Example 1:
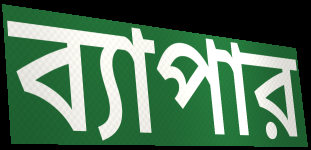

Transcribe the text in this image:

ব্যাপার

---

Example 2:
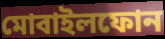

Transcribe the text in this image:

মোবাইলফোন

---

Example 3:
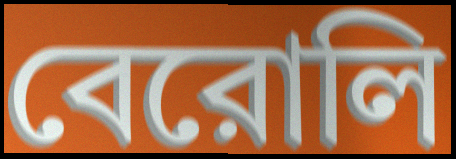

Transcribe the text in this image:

বেরোলি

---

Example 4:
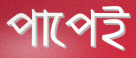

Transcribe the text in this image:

পাপেই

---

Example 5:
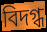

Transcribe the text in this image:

বিদগ্ধ